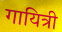
गायित्री